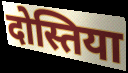
दोस्तिया